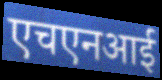
एचएनआई